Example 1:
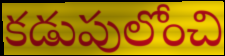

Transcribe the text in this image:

కడుపులోంచి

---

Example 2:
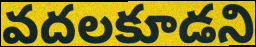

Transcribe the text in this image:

వదలకూడని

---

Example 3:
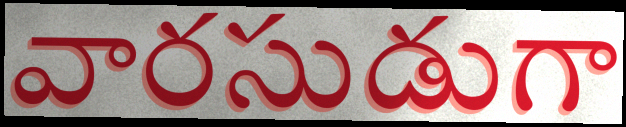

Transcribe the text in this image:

వారసుడుగా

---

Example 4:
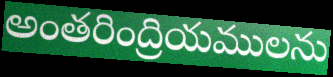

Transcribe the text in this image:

అంతరింద్రియములను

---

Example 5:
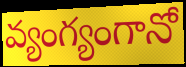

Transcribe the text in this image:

వ్యంగ్యంగానో